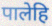
पालेहि